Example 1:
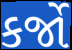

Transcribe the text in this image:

કર્જો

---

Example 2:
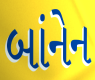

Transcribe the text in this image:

બાંનેન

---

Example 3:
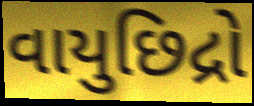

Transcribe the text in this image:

વાયુછિદ્રો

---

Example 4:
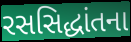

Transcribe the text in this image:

રસસિદ્ધાંતના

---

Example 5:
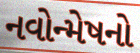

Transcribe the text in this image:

નવોન્મેષનો